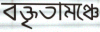
বক্তৃতামঞ্চে